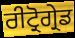
ਰੀਟ੍ਰੋਗ੍ਰੇਡ